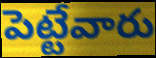
పెట్టేవారు